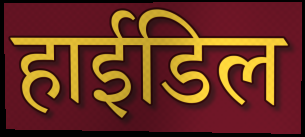
हाईडिल